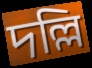
দল্লি